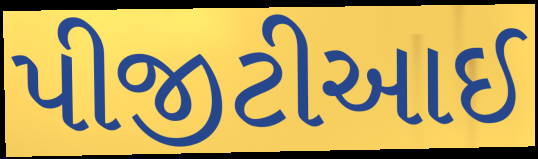
પીજીટીઆઈ